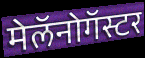
मेलॅनोगॅस्टर